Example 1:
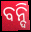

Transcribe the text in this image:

ବନ୍ଦି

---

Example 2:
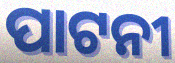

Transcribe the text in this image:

ପାଟନୀ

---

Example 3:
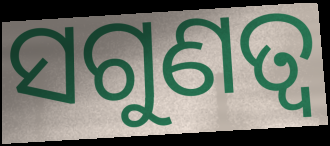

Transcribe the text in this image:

ସଗୁଣତ୍ଵ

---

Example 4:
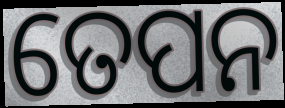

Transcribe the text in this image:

ତେପନ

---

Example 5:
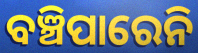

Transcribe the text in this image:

ବଞ୍ଚିପାରେନି